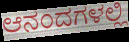
ಆನಂದಗಳಲ್ಲಿ